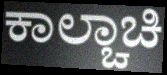
ಕಾಲ್ಚಾಚಿ